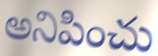
అనిపించు